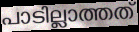
പാടില്ലാത്തത്